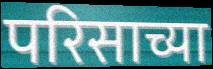
परिसाच्या